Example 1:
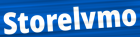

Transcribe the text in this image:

Storelvmo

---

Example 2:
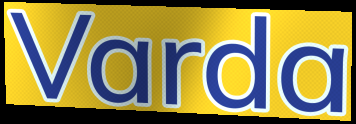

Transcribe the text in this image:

Varda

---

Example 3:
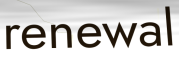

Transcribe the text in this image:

renewal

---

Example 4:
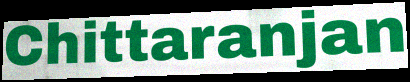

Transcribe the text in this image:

Chittaranjan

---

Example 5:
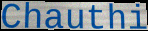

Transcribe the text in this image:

Chauthi